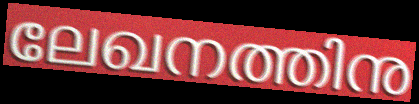
ലേഖനത്തിനു